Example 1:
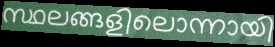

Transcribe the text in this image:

സ്ഥലങ്ങളിലൊന്നായി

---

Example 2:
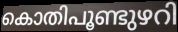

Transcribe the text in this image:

കൊതിപൂണ്ടുഴറി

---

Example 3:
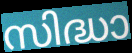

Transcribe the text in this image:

സിദ്ധാ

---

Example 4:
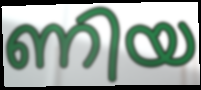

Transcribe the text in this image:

ണിയ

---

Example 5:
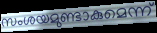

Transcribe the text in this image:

സംശയമുണ്ടാകുമെന്ന്